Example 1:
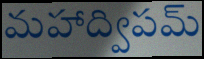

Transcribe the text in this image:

మహాద్విపమ్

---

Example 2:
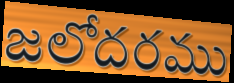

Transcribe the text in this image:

జలోదరము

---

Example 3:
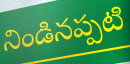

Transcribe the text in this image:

నిండినప్పటి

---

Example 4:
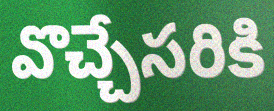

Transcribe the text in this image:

వొచ్చేసరికి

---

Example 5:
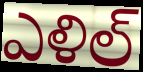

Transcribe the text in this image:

ఎళిల్